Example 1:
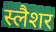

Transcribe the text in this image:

स्लैशर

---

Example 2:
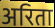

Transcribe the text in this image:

अरिता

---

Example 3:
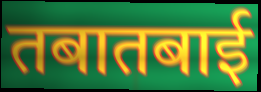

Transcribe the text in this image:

तबातबाई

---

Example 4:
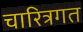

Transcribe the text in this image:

चारित्रगत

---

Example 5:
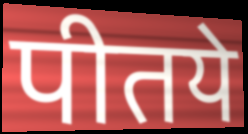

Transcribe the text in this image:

पीतये